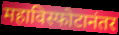
महाविस्फोटानंतर